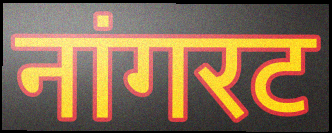
नांगरट